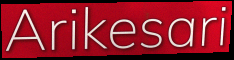
Arikesari